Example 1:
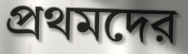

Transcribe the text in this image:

প্রথমদের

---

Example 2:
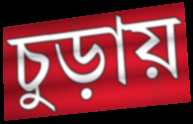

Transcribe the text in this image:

চুড়ায়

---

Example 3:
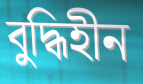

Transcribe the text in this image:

বুদ্ধিহীন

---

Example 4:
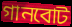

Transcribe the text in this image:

গানবোট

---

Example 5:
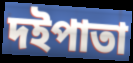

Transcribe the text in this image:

দইপাতা